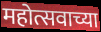
महोत्सवाच्या